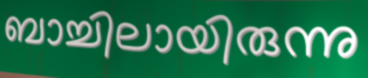
ബാച്ചിലായിരുന്നു